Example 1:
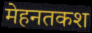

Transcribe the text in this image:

मेहनतकश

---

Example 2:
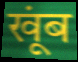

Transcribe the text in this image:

खूंब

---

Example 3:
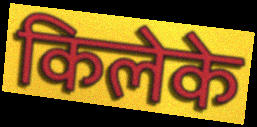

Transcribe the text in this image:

किलेके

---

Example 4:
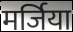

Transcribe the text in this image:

मर्जिया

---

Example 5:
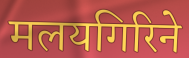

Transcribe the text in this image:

मलयगिरिने